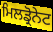
ਮਿਲਡ੍ਰੋਨੇਟ